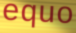
equo